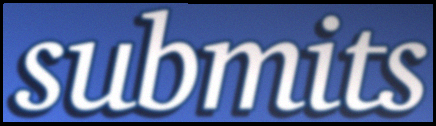
submits